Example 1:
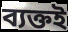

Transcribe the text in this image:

ব্যক্তই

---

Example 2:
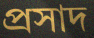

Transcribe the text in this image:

প্রসাদ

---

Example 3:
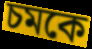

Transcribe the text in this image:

চমকে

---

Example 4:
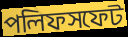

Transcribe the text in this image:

পলিফসফেট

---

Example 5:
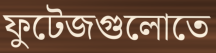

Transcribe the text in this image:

ফুটেজগুলোতে